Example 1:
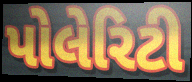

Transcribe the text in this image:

પોલેરિટી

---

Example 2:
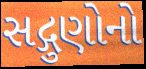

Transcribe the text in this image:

સદ્ગુણોનો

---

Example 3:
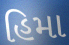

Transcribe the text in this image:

હિમા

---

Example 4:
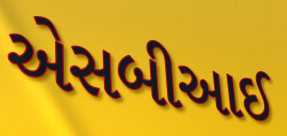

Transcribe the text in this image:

એસબીઆઈ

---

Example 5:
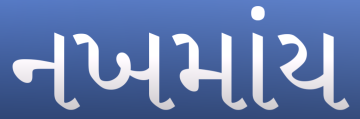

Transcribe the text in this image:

નખમાંય